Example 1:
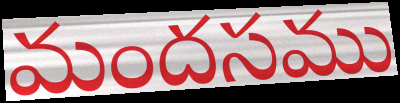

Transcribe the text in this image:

మందసము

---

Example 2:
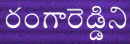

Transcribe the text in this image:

రంగారెడ్డిని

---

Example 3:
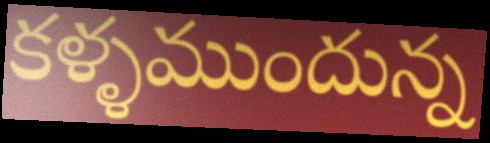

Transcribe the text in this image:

కళ్ళముందున్న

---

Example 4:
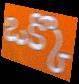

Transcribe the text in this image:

ఒక్కొ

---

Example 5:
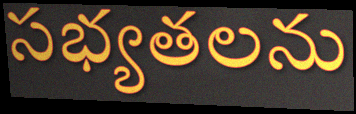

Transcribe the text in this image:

సభ్యతలను